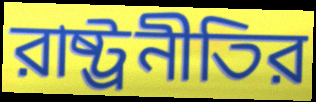
রাষ্ট্রনীতির